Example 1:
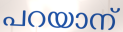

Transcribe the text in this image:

പറയാന്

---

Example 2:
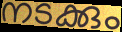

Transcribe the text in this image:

നടക്കും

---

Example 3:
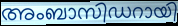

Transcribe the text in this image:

അംബാസിഡറായി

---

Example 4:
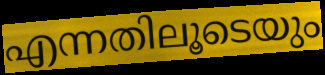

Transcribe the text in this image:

എന്നതിലൂടെയും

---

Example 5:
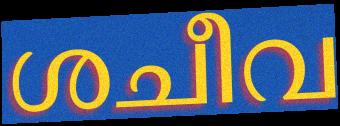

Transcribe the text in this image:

ശചീവ